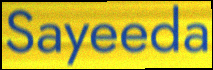
Sayeeda